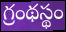
గ్రంథస్థం